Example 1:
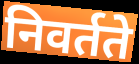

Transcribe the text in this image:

निवर्तते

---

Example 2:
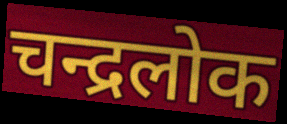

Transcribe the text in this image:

चन्द्रलोक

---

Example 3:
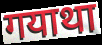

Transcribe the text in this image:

गयाथा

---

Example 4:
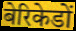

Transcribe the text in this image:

बेरिकेडों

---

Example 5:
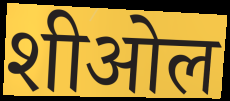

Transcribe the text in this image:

शीओल